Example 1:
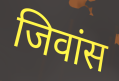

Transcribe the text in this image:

जिवांस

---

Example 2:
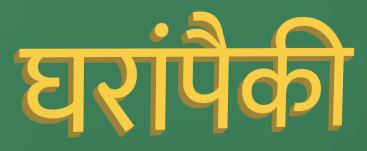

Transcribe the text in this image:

घरांपैकी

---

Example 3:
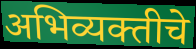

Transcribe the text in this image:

अभिव्यक्तीचे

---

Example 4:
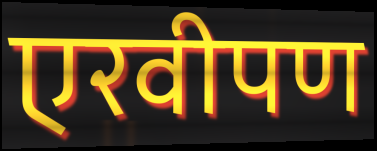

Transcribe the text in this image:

एरवीपण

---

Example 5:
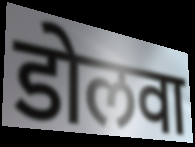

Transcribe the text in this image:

डोलवा